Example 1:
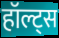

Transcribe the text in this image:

हॉल्ट्स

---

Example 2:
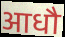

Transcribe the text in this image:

आधौ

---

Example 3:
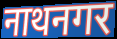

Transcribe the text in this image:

नाथनगर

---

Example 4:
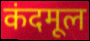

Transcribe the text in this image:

कंदमूल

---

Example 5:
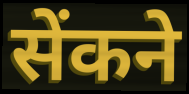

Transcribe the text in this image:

सेंकने